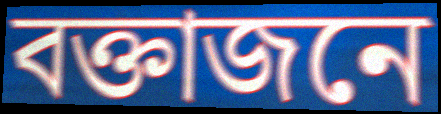
বক্তাজনে